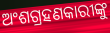
ଅଂଶଗ୍ରହଣକାରୀଙ୍କୁ